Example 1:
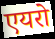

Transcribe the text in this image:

एयरो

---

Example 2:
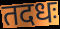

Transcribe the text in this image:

तदधः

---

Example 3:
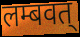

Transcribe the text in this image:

लम्बवत्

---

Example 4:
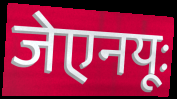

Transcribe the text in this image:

जेएनयूः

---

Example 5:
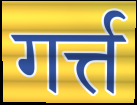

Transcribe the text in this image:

गर्त्त